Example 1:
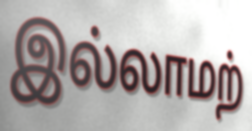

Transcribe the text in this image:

இல்லாமற்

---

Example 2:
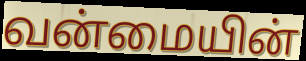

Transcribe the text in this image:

வன்மையின்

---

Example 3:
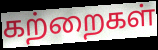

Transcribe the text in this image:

கற்றைகள்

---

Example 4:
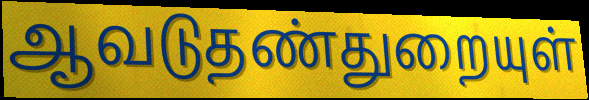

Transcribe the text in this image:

ஆவடுதண்துறையுள்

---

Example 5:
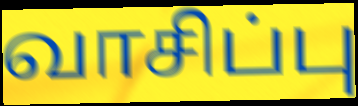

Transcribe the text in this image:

வாசிப்பு